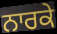
ਨਾਰਕੇ